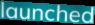
launched